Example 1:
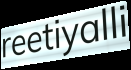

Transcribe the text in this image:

reetiyalli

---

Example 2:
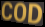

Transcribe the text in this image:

COD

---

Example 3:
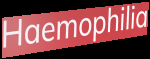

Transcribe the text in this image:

Haemophilia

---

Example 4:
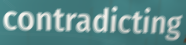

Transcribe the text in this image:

contradicting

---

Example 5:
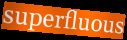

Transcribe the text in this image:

superfluous